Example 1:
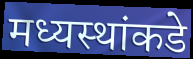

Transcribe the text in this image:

मध्यस्थांकडे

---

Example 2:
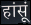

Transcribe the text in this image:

हांसूं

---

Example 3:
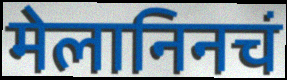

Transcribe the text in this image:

मेलानिनचं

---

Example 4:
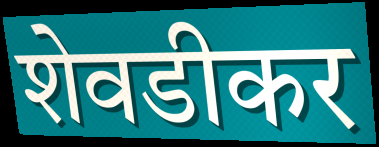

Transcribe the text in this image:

शेवडीकर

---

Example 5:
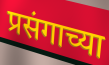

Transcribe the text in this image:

प्रसंगाच्या